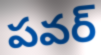
పవర్